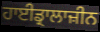
ਹਾਈਡ੍ਰਾਲਾਜ਼ੀਨ